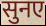
सुनए